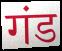
गंड